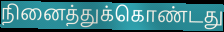
நினைத்துக்கொண்டது